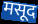
मसूद